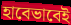
হাবেভাবেই